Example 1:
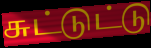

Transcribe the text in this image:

சுட்டுட்டு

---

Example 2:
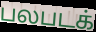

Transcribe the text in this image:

பலபடக்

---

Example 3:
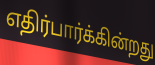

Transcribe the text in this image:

எதிர்பார்க்கின்றது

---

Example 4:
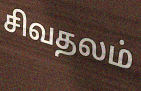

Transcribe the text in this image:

சிவதலம்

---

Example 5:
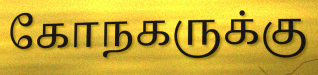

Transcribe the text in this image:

கோநகருக்கு